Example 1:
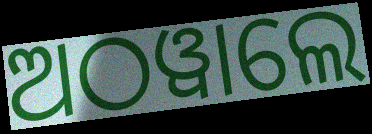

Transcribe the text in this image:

ଅଠୱାଲେ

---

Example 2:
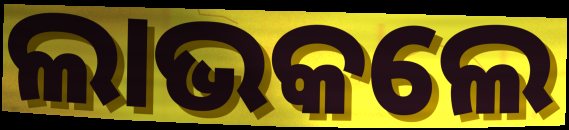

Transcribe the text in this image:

ଲାଭକଲେ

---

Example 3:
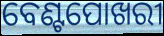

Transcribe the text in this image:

ବେଣ୍ଟପୋଖରୀ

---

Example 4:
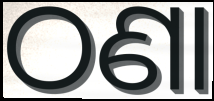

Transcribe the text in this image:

ଠଣା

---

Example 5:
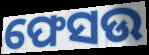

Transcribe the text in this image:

ଫେସଉ